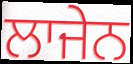
ਲਾਜੇਨ